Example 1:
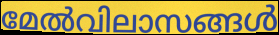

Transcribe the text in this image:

മേൽവിലാസങ്ങൾ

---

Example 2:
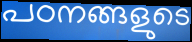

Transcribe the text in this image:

പഠനങ്ങളുടെ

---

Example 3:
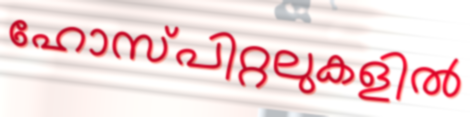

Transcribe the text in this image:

ഹോസ്പിറ്റലുകളിൽ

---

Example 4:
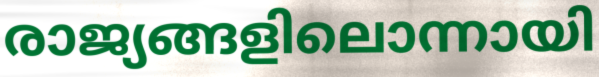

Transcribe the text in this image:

രാജ്യങ്ങളിലൊന്നായി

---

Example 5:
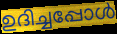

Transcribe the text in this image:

ഉദിച്ചപ്പോൾ